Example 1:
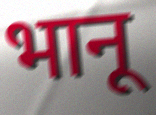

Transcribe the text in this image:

भानू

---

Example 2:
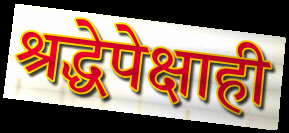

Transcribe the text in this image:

श्रद्धेपेक्षाही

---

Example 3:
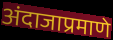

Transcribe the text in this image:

अंदाजाप्रमाणे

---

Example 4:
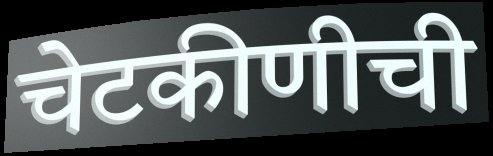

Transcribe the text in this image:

चेटकीणीची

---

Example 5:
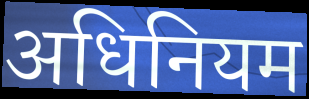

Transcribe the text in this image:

अधिनियम